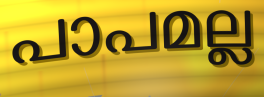
പാപമല്ല